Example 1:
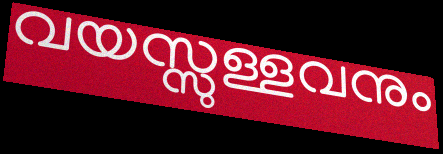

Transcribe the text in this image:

വയസ്സുള്ളവനും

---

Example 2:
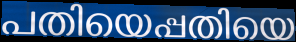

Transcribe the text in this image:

പതിയെപ്പതിയെ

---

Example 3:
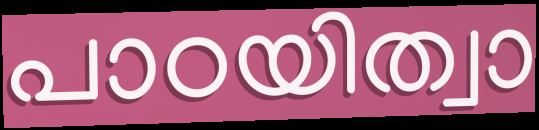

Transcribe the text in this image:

പാഠയിത്വാ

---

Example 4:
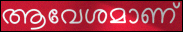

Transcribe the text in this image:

ആവേശമാണ്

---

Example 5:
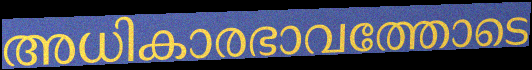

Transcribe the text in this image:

അധികാരഭാവത്തോടെ